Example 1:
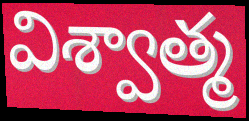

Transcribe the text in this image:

విశ్వాత్మ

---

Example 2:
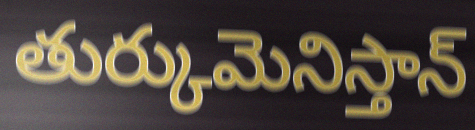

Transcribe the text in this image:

తుర్కుమెనిస్తాన్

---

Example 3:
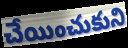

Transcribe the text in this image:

చేయించుకుని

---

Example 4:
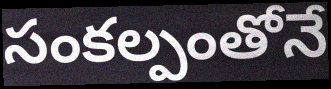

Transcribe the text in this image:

సంకల్పంతోనే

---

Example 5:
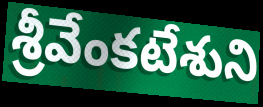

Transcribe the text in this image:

శ్రీవేంకటేశుని